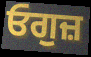
ਓਗੁਜ਼